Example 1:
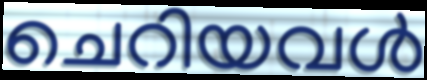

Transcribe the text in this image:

ചെറിയവൾ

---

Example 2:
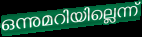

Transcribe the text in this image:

ഒന്നുമറിയില്ലെന്ന്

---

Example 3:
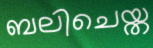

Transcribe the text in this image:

ബലിചെയ്ത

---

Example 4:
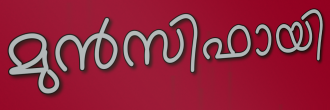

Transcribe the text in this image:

മുൻസിഫായി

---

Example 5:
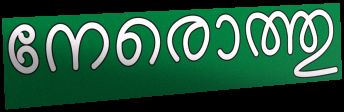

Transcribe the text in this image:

നേരൊത്തു